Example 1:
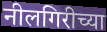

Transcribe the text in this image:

नीलगिरीच्या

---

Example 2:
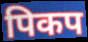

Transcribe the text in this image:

पिकप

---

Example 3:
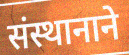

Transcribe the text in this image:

संस्थानाने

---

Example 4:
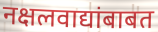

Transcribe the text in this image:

नक्षलवाद्यांबाबत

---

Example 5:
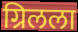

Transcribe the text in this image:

ग्रिलला